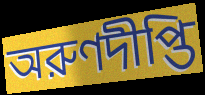
অরুণদীপ্তি